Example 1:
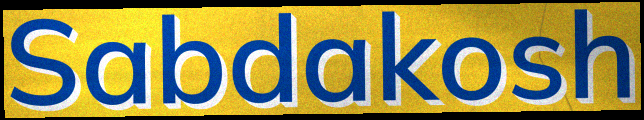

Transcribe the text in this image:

Sabdakosh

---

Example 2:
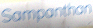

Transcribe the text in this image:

Sampanthan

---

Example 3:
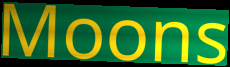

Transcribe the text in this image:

Moons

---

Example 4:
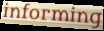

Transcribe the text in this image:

informing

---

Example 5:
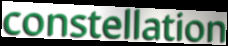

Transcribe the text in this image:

constellation